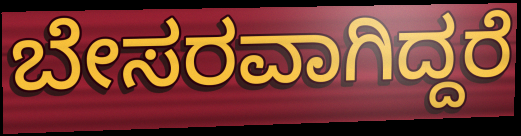
ಬೇಸರವಾಗಿದ್ದರೆ